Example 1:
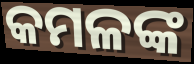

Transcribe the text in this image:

କମଳଙ୍କ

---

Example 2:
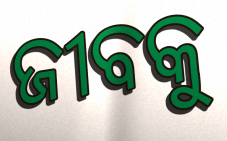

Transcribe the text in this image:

ଜୀବକୁ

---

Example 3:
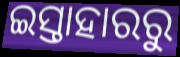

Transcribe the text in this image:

ଇସ୍ତାହାରରୁ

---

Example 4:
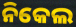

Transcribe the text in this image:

ନିକେଲ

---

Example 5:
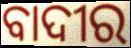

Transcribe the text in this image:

ବାଦୀର